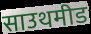
साउथमीड